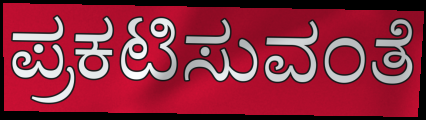
ಪ್ರಕಟಿಸುವಂತೆ